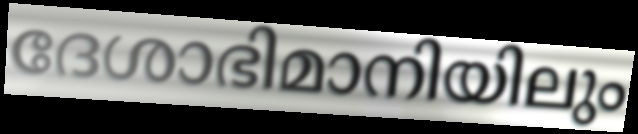
ദേശാഭിമാനിയിലും